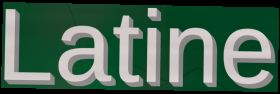
Latine